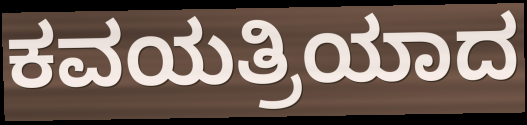
ಕವಯತ್ರಿಯಾದ